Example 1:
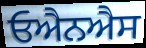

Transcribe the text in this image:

ਓਐਨਐਸ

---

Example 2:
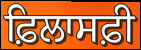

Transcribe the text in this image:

ਫ਼ਿਲਾਸਫ਼ੀ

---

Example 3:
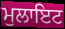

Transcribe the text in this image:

ਮੁਲਾਇਟ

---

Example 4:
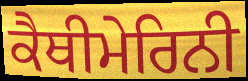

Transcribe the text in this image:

ਕੈਥੀਮੇਰਿਨੀ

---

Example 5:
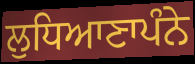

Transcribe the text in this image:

ਲੁਧਿਆਣਾਪੰਨੇ